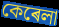
কেৰেলা